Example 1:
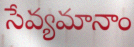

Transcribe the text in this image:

సేవ్యమానాం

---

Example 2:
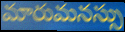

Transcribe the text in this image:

మారుమనస్సు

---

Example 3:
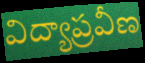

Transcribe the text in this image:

విద్యాప్రవీణ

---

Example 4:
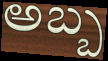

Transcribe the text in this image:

అబ్బ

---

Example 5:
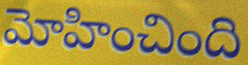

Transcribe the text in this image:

మోహించింది